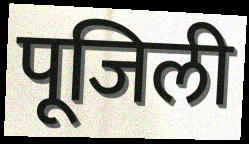
पूजिली